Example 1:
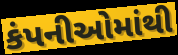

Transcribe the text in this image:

કંપનીઓમાંથી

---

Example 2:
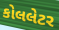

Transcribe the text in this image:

કોલલેટર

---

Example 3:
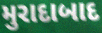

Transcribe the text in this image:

મુરાદાબાદ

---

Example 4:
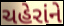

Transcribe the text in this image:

ચહેરાંને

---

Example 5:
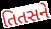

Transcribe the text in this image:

તિતસને